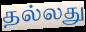
தல்லது